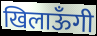
खिलाऊँगी